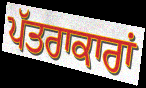
ਪੱਤਰਾਕਾਰਾਂ